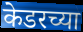
केडरच्या